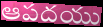
ఆపదయు